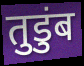
तुडुंब